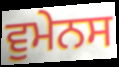
ਵੁਮੇਨਸ